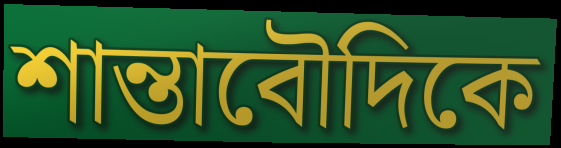
শান্তাবৌদিকে